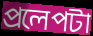
প্রলেপটা